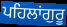
ਪਹਿਲਾਂਗੁਰੂ